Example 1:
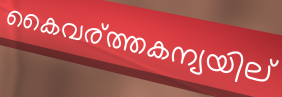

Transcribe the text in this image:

കൈവര്ത്തകന്യയില്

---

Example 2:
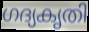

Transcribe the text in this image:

ഗദ്യകൃതി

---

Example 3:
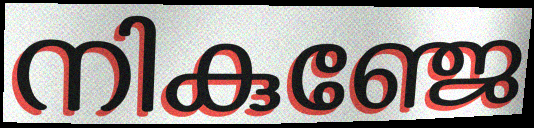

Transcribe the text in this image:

നികുഞ്ജേ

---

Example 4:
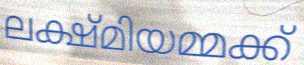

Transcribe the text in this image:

ലക്ഷ്മിയമ്മക്ക്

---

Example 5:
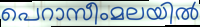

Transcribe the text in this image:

പെറാസീംമലയിൽ